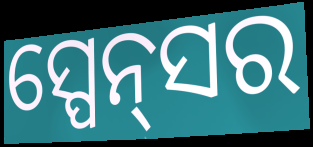
ସ୍ପେନ୍‌ସର